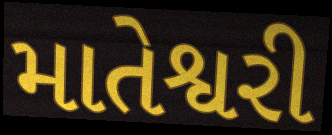
માતેશ્વરી